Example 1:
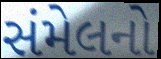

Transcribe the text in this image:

સંમેલનો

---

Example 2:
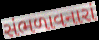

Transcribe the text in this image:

સંભળાવનારાં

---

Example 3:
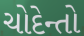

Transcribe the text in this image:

ચોદેન્તો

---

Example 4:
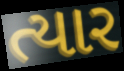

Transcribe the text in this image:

ત્‍યાર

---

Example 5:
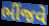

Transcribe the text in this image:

ભીંજવે